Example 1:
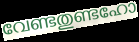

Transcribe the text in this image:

വേണ്ടതുണ്ടഹോ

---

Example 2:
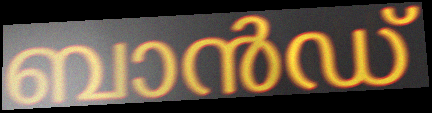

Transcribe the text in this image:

ബാൻഡ്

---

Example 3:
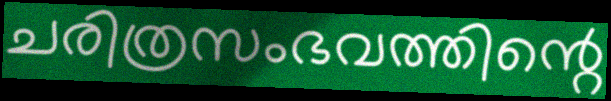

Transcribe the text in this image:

ചരിത്രസംഭവത്തിന്റെ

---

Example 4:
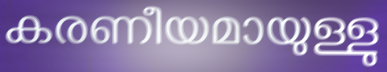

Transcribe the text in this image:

കരണീയമായുള്ളു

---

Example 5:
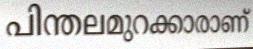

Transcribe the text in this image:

പിന്തലമുറക്കാരാണ്